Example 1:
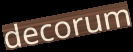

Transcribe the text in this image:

decorum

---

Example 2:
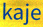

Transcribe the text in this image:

kaje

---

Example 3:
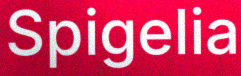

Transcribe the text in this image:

Spigelia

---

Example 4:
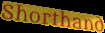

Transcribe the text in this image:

Shorthand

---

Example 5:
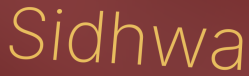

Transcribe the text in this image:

Sidhwa